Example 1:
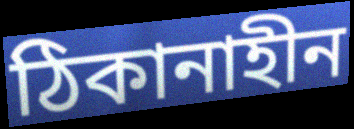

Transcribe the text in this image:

ঠিকানাহীন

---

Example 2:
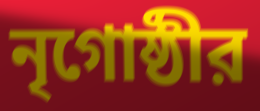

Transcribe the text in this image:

নৃগোষ্ঠীর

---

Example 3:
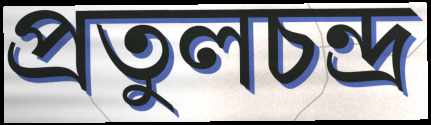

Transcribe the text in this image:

প্রতুলচন্দ্র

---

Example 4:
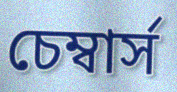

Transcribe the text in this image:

চেম্বার্স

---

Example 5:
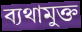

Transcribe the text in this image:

ব্যথামুক্ত